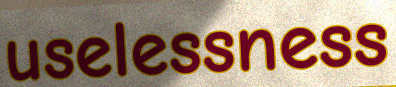
uselessness